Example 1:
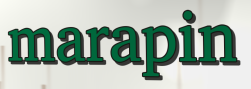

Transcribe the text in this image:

marapin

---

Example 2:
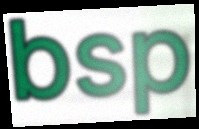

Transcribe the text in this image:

bsp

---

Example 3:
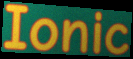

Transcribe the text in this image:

Ionic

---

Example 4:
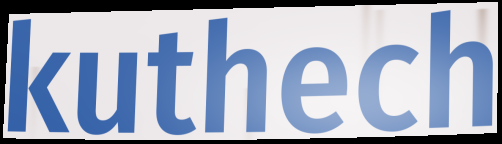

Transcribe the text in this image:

kuthech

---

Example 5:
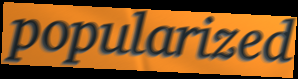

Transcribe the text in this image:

popularized